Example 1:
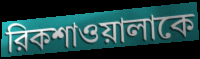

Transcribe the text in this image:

রিকশাওয়ালাকে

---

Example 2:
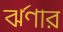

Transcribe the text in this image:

র্ঝণার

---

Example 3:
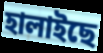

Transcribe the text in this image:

হালাইছে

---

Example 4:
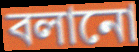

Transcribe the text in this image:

বলানো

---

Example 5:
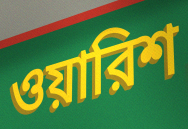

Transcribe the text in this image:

ওয়ারিশ